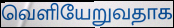
வெளியேறுவதாக